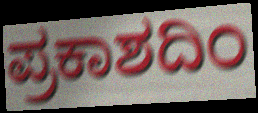
ಪ್ರಕಾಶದಿಂ